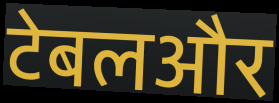
टेबलऔर